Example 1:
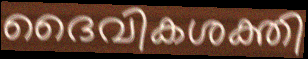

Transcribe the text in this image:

ദൈവികശക്തി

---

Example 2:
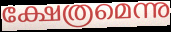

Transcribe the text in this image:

ക്ഷേത്രമെന്നു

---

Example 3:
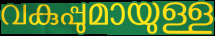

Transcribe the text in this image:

വകുപ്പുമായുള്ള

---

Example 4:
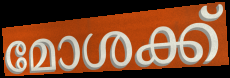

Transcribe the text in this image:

മോശക്ക്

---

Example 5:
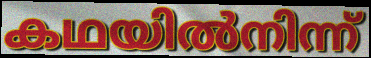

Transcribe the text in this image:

കഥയിൽനിന്ന്